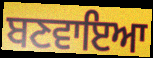
ਬਣਵਾਇਆ